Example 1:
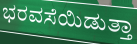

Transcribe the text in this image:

ಭರವಸೆಯಿಡುತ್ತಾ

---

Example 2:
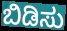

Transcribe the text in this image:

ಬಿಡಿಸು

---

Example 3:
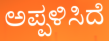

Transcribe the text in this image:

ಅಪ್ಪಳಿಸಿದೆ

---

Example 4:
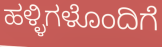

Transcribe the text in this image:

ಹಳ್ಳಿಗಳೊಂದಿಗೆ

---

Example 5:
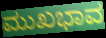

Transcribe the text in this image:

ಮುಖಭಾವ